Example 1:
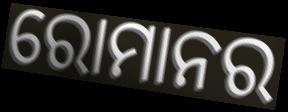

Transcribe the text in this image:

ରୋମାନର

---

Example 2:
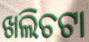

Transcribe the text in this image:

ଖଲିଚଟା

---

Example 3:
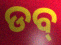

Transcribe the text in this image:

ଡବ୍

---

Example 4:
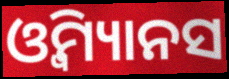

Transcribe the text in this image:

ଓ୍ବିମ୍ୟାନସ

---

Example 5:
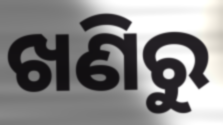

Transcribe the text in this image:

ଖଣିରୁ